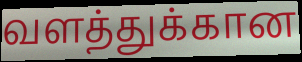
வளத்துக்கான